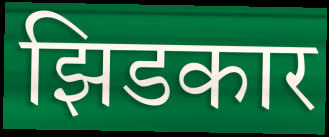
झिडकार